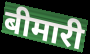
बीमारी